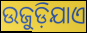
ଉଜୁଡ଼ିଯାଏ